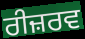
ਰੀਜ਼ਰਵ